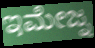
ಇಮೇಜ್ನ